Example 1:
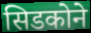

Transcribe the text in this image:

सिडकोने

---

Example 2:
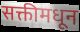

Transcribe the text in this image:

सक्तीमधून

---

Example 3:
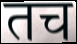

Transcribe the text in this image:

तच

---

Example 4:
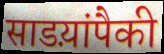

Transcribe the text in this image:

साडय़ांपैकी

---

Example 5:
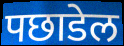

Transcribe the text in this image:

पछाडेल